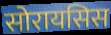
सोरायसिस